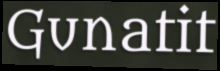
Gunatit